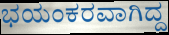
ಭಯಂಕರವಾಗಿದ್ದ